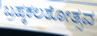
ಬ್ರಹ್ಮಕಲಶೋತ್ಸವ